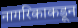
नागरिकाकडून